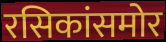
रसिकांसमोर